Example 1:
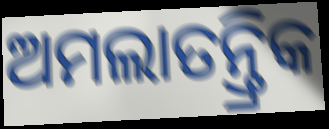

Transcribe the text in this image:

ଅମଲାତନ୍ତ୍ରିକ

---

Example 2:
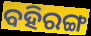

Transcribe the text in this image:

ବହିରଙ୍ଗ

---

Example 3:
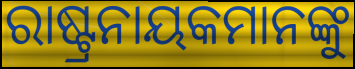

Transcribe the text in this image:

ରାଷ୍ଟ୍ରନାୟକମାନଙ୍କୁ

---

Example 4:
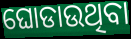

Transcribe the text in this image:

ଘୋଡାଉଥିବା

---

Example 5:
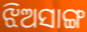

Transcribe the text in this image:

ଝିଅସାଙ୍ଗ